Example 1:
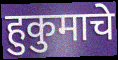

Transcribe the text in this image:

हुकुमाचे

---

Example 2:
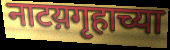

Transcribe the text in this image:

नाटय़गृहाच्या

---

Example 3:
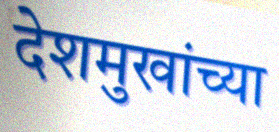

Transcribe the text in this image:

देशमुखांच्या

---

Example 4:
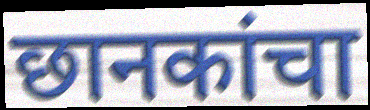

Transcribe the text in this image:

छानकांचा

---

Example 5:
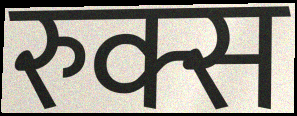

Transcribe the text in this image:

रुक्स